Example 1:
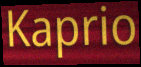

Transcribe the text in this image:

Kaprio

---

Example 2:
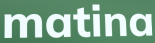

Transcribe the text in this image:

matina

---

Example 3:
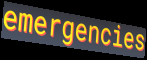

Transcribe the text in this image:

emergencies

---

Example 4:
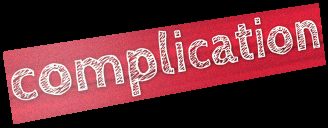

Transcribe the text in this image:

complication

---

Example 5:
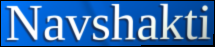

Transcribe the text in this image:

Navshakti